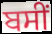
ਬਸੀਂ